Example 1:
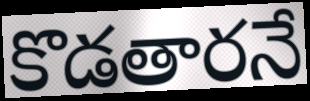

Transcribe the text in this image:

కొడతారనే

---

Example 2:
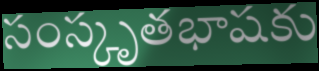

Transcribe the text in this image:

సంస్కృతభాషకు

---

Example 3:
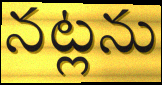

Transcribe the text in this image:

నట్లను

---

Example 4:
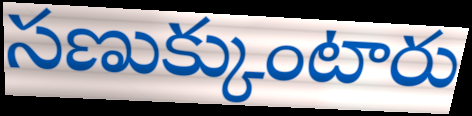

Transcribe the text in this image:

సణుక్కుంటారు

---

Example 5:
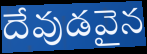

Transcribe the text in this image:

దేవుడవైన